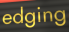
edging